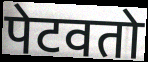
पेटवतो